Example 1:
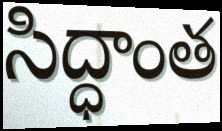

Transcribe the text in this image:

సిద్ధాంత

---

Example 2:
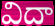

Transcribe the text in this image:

విదా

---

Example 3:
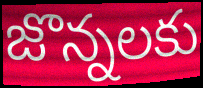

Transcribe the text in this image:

జొన్నలకు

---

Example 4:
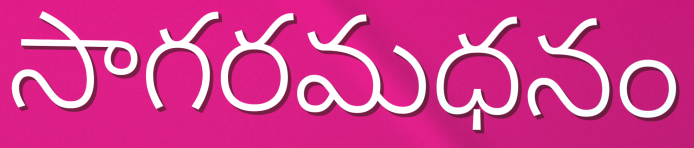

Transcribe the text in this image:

సాగరమధనం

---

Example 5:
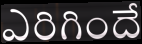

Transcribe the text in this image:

ఎరిగిందే